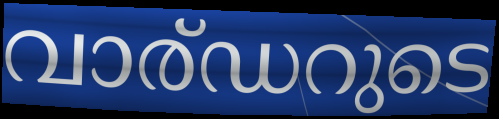
വാര്ഡറുടെ